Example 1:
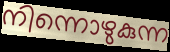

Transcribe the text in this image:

നിന്നൊഴുകുന്ന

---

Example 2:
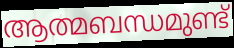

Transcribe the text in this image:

ആത്മബന്ധമുണ്ട്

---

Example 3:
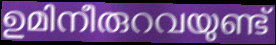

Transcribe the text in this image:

ഉമിനീരുറവയുണ്ട്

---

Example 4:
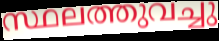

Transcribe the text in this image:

സ്ഥലത്തുവച്ചു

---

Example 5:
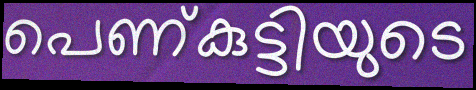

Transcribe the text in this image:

പെണ്കുട്ടിയുടെ